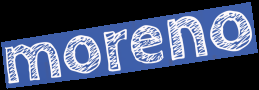
moreno